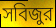
সবিজুর